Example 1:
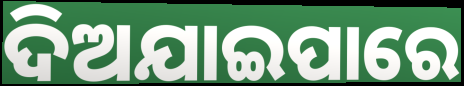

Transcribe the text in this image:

ଦିଅଯାଇପାରେ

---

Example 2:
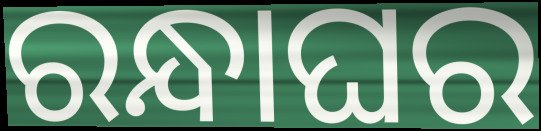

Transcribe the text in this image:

ରନ୍ଧାଘର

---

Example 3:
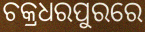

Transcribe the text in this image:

ଚକ୍ରଧରପୁରରେ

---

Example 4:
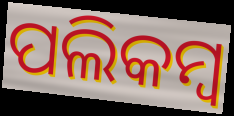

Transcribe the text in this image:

ପଲିକମ୍ବ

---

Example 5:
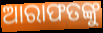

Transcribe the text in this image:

ଆରାଫତଙ୍କୁ